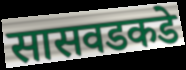
सासवडकडे